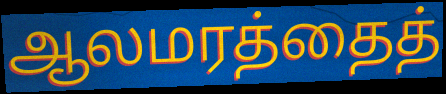
ஆலமரத்தைத்